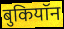
बुकियॉन